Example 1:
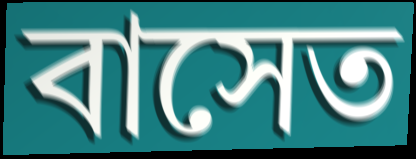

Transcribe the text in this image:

বাসেত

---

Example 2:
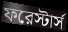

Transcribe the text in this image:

ফরেস্টার্স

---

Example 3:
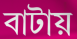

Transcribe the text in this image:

বাটায়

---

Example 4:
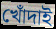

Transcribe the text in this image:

খোঁদাই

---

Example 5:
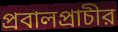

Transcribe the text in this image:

প্রবালপ্রাচীর